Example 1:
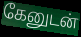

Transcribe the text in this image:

கேனுடன்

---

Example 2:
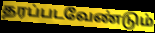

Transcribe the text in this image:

தரப்படவேண்டும்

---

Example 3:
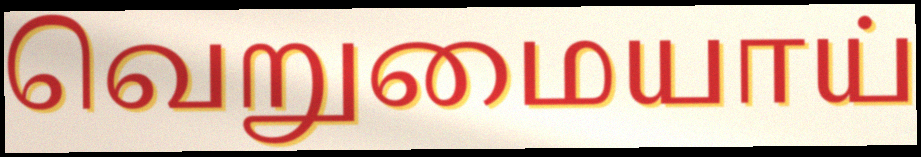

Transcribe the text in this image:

வெறுமையாய்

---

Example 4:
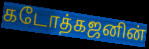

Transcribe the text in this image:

கடோத்கஜனின்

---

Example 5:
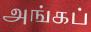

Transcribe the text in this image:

அங்கப்